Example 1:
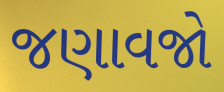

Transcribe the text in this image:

જણાવજો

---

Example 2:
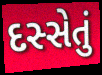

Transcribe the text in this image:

દસ્સેતું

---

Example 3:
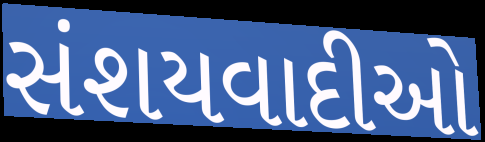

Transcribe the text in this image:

સંશયવાદીઓ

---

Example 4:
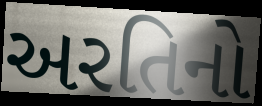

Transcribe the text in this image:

અરતિનો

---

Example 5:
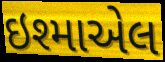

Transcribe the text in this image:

ઇશ્માએલ